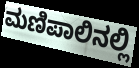
ಮಣಿಪಾಲಿನಲ್ಲಿ